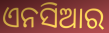
ଏନସିଆର